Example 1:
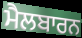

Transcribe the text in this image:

ਮੈਲਬਾਰਨ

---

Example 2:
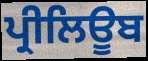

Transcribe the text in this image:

ਪ੍ਰੀਲਿਊਬ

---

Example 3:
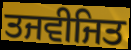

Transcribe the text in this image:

ਤਜਵੀਜਿਤ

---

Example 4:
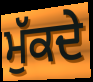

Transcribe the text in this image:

ਮੁੱਕਦੇ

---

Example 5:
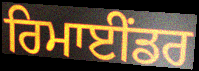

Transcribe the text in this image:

ਰਿਮਾਈਂਡਰ